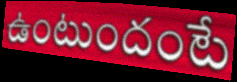
ఉంటుందంటే